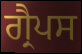
ਗ੍ਰੈਪਸ